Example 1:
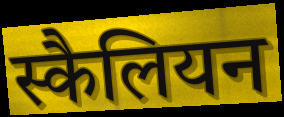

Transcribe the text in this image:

स्कैलियन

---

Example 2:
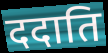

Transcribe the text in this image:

ददाति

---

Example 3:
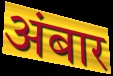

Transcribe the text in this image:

अंबार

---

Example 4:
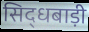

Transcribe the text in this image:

सिद्धबाड़ी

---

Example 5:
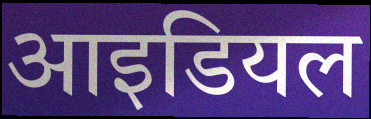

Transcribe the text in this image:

आइडियल